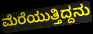
ಮೆರೆಯುತ್ತಿದ್ದನು